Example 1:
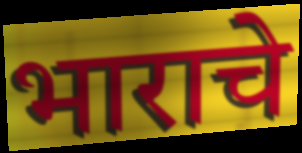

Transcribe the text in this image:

भाराचे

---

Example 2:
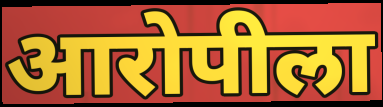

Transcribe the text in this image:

आरोपीला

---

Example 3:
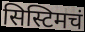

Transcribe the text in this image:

सिस्टिमचं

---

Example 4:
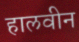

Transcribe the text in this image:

हालवीन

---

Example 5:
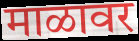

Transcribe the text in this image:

माळावर